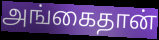
அங்கைதான்